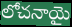
లోచనాయై